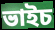
ভাইচ